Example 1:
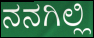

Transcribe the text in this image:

ನನಗಿಲ್ಲಿ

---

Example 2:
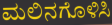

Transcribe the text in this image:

ಮಲಿನಗೊಳಿಸಿ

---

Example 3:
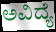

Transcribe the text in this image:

ಅವಿದ್ಯೆ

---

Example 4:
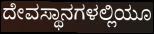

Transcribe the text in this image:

ದೇವಸ್ಥಾನಗಳಲ್ಲಿಯೂ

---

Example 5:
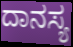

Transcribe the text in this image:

ದಾನಸ್ಯ